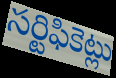
సర్టిఫికెట్లు